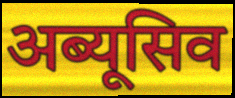
अब्यूसिव